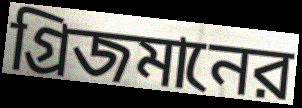
গ্রিজমানের